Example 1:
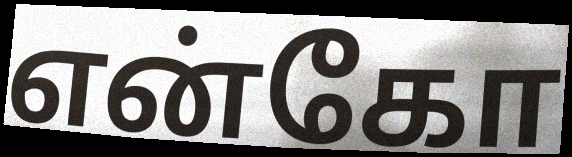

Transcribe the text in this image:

என்கோ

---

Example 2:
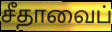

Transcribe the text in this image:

சீதாவைப்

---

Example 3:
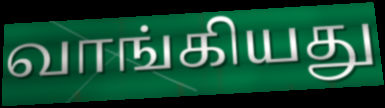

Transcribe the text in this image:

வாங்கியது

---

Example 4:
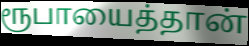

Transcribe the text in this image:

ரூபாயைத்தான்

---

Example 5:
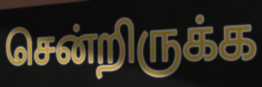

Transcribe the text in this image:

சென்றிருக்க